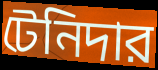
টেনিদার